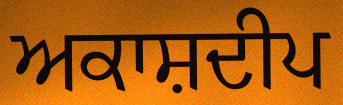
ਅਕਾਸ਼ਦੀਪ